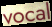
vocal